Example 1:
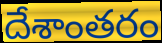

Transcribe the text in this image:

దేశాంతరం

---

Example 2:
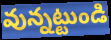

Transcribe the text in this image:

వున్నట్టుండి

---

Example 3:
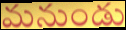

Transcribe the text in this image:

మనుండు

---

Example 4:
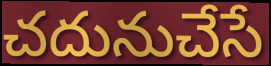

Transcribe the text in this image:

చదునుచేసే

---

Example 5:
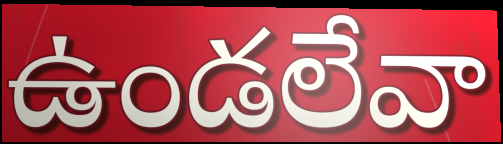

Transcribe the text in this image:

ఉండలేవా